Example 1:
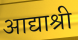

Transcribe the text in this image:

आद्याश्री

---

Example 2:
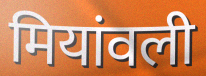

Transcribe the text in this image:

मियांवली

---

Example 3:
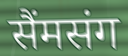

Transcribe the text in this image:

सैंमसंग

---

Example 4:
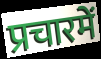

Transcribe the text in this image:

प्रचारमें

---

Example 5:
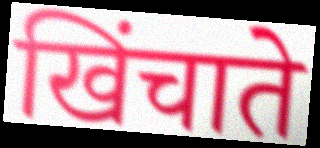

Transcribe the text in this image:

खिंचाते